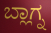
ಬ್ಲಾಗ್ನ